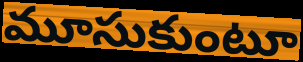
మూసుకుంటూ